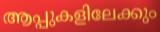
ആപ്പുകളിലേക്കും